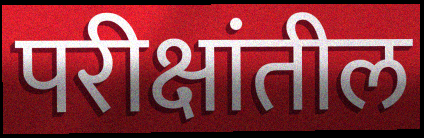
परीक्षांतील